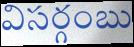
విసర్గంబు